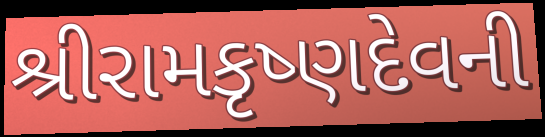
શ્રીરામકૃષ્ણદેવની